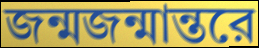
জন্মজন্মান্তরে